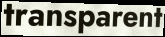
transparent